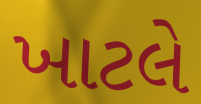
ખાટલે